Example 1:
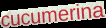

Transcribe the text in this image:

cucumerina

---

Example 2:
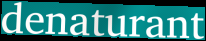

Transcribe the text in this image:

denaturant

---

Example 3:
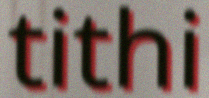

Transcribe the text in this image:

tithi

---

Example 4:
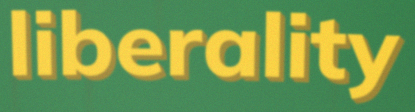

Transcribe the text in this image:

liberality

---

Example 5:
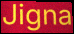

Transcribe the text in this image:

Jigna